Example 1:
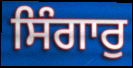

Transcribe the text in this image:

ਸਿੰਗਾਰੁ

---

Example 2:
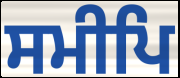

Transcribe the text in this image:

ਸਮੀਪਿ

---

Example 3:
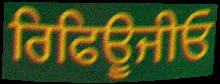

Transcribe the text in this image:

ਰਿਫਿਊਜੀਓ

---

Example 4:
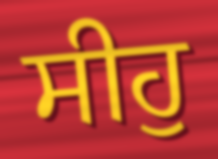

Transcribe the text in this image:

ਸੀਹੁ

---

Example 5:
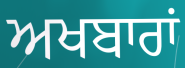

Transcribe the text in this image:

ਅਖਬਾਰਾਂ